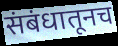
संबंधातूनच